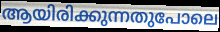
ആയിരിക്കുന്നതുപോലെ